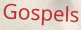
Gospels